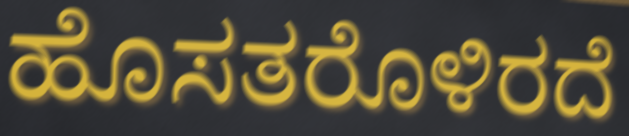
ಹೊಸತರೊಳಿರದೆ